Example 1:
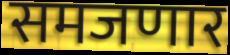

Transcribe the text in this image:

समजणार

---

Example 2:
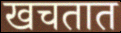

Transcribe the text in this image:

खचतात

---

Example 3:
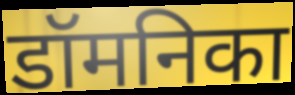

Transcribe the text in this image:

डॉमनिका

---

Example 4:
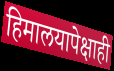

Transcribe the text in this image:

हिमालयापेक्षाही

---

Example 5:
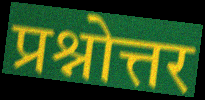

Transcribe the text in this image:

प्रश्नोत्तर